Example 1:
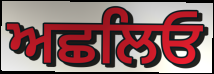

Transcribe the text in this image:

ਅਛਲਿਓ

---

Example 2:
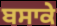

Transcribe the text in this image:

ਬਸਾਕੇ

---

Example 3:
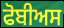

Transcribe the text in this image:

ਫੋਬੀਅਸ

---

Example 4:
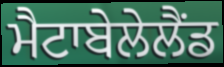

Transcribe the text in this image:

ਮੈਟਾਬੇਲੇਲੈਂਡ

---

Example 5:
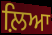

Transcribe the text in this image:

ਲ਼ਿਆ